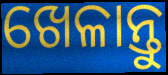
ଖେଳାନ୍ତୁ